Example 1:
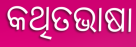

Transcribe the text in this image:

କଥିତଭାଷା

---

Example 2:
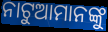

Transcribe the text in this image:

ନାଟୁଆମାନଙ୍କୁ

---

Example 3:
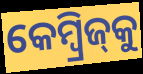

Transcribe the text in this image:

କେମ୍ୱ୍ରିଜ୍‌କୁ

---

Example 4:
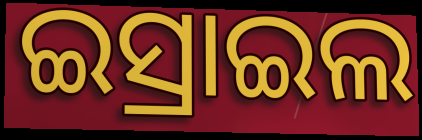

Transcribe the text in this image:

ଇସ୍ରାଇଲ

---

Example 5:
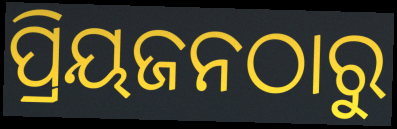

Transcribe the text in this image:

ପ୍ରିୟଜନଠାରୁ